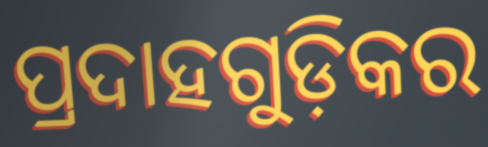
ପ୍ରଦାହଗୁଡ଼ିକର